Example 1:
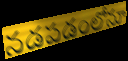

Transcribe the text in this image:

నడపడంలోనూ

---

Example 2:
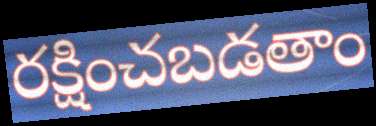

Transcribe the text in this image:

రక్షించబడతాం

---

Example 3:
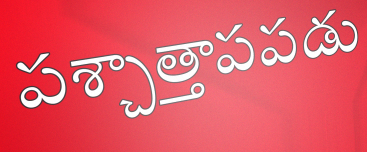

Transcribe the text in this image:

పశ్చాత్తాపపడు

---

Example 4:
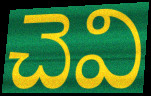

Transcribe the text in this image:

చెవి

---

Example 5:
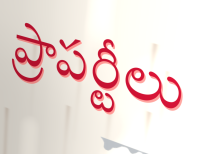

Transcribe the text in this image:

ప్రాపర్టీలు